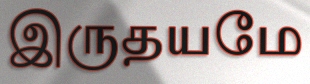
இருதயமே